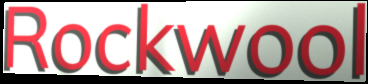
Rockwool